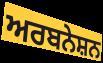
ਅਰਬਨੇਸ਼ਨ